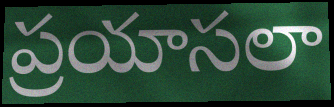
ప్రయాసలా